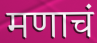
मणाचं